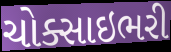
ચોક્સાઇભરી